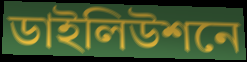
ডাইলিউশনে